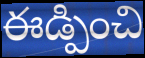
ఈడ్పించి